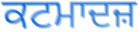
ਕਟਮਾਦਜ਼